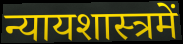
न्यायशास्त्रमें